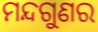
ମନ୍ଦଗୁଣର